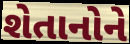
શેતાનોને